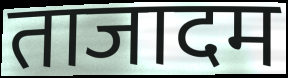
ताजादम